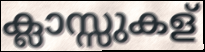
ക്ലാസ്സുകള്